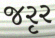
જરૃર